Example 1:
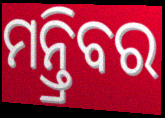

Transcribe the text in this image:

ମନ୍ତ୍ରିବର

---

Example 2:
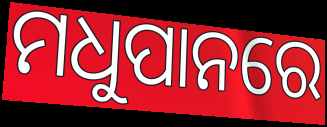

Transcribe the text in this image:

ମଧୁପାନରେ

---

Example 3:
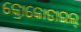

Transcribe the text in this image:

କ୍ରୋକୋଡାଇଲ୍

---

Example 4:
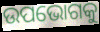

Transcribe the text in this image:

ଉପଭୋଗକୁ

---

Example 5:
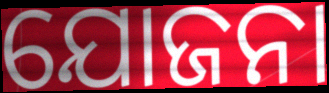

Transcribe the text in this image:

ଯୋଜନା